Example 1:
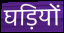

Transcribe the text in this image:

घड़ियों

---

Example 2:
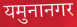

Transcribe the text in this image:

यमुनानगर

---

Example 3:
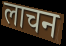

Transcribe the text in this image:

लाचन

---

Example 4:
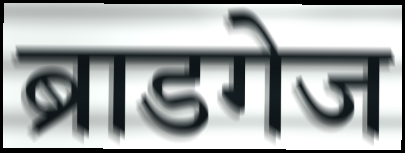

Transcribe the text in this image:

ब्राडगेज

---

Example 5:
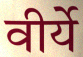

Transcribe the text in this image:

वीर्ये